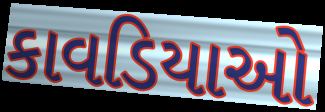
કાવડિયાઓ